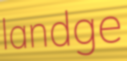
landge